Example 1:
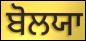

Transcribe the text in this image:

ਬੋਲਯਾ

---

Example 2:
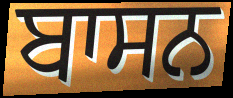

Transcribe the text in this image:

ਬਾਸਨ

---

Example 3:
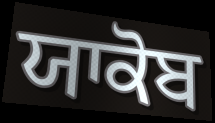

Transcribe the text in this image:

ਯਾਕੋਬ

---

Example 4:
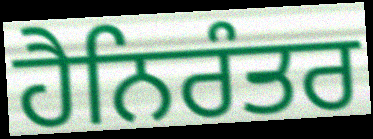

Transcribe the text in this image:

ਹੈਨਿਰੰਤਰ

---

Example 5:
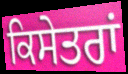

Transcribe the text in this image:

ਕਿਸੇਤਰਾਂ